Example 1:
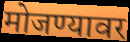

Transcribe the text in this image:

मोजण्यावर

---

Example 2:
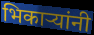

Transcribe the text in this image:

भिकाऱ्यांनी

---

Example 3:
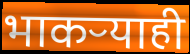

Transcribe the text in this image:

भाकऱ्याही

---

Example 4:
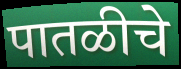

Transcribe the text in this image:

पातळीचे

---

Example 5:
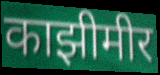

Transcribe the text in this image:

काझीमीर